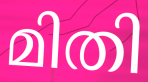
മിതി